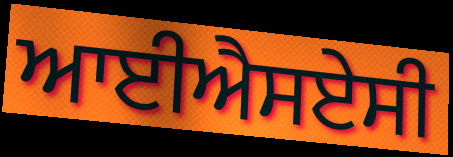
ਆਈਐਸਏਸੀ